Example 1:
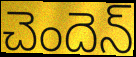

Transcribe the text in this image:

చెందెన్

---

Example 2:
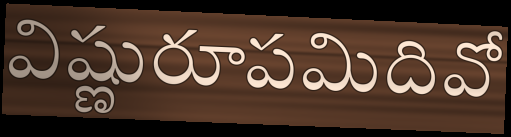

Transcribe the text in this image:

విష్ణురూపమిదివో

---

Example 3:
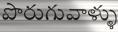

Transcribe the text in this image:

పొరుగువాళ్ళు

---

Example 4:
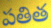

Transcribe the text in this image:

పతిత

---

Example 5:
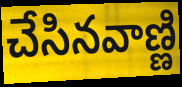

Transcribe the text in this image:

చేసినవాణ్ణి